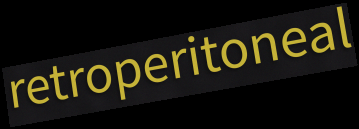
retroperitoneal